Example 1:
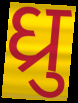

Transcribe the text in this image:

ध्रु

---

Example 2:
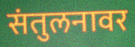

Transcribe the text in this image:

संतुलनावर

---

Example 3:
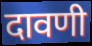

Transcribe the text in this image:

दावणी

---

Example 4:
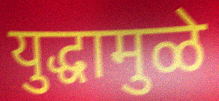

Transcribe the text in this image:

युद्धामुळे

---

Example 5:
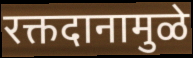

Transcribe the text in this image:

रक्तदानामुळे